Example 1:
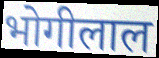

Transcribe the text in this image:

भोगीलाल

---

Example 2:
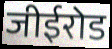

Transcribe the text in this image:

जीईरोड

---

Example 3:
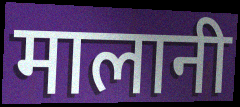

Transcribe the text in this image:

मालानी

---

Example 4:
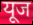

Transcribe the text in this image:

यूज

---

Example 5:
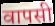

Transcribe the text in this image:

वापसी